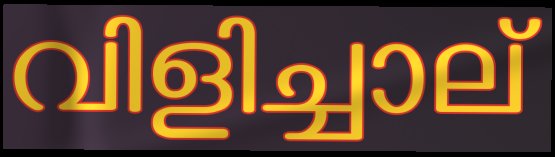
വിളിച്ചാല്